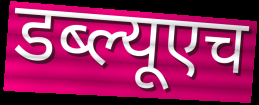
डब्ल्यूएच